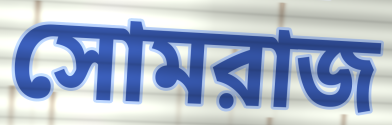
সোমরাজ